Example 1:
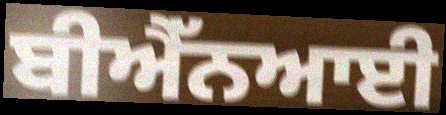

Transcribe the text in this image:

ਬੀਐੱਨਆਈ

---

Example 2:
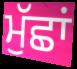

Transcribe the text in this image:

ਮੁੱਛਾਂ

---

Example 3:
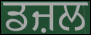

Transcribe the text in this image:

ਡਜ਼ਲ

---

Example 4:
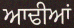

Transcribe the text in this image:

ਆਢੀਆਂ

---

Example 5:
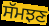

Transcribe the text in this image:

ਸੱਮਝਣ